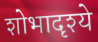
शोभादृश्ये